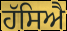
ਹੱਸਿਐ